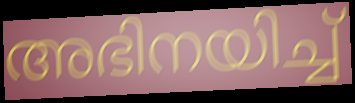
അഭിനയിച്ച്